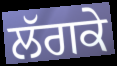
ਲੱਗਕੇ